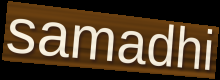
samadhi